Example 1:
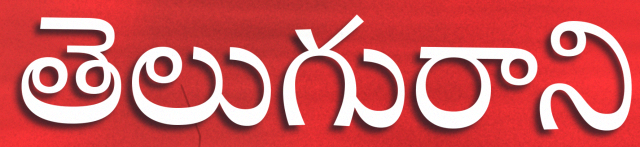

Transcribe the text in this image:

తెలుగురాని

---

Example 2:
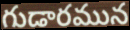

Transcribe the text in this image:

గుడారమున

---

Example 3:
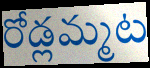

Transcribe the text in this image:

రోడ్లమ్మట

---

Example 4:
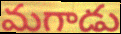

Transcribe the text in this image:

మగాడు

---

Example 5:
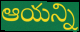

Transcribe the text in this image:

ఆయన్ని